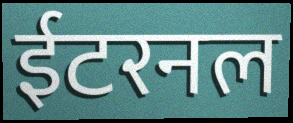
ईटरनल